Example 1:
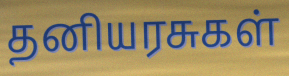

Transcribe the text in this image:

தனியரசுகள்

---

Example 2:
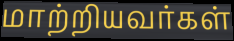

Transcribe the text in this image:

மாற்றியவர்கள்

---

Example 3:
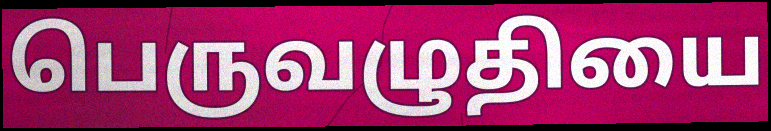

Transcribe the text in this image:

பெருவழுதியை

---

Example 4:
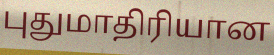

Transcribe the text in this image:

புதுமாதிரியான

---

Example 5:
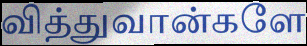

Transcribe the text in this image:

வித்துவான்களே